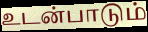
உடன்பாடும்